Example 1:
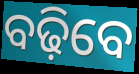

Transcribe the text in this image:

ବଢ଼ିବେ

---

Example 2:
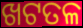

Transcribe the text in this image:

ଖଟତଳ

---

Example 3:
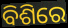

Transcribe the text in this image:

ବିଶିରେ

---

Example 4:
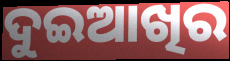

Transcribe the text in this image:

ଦୁଇଆଖିର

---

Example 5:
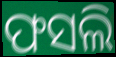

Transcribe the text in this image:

ଫସଲି